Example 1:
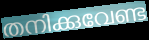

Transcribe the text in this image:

തനിക്കുവേണ്ട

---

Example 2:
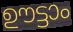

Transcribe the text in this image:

ഊട്ടാം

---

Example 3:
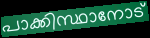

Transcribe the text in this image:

പാക്കിസ്ഥാനോട്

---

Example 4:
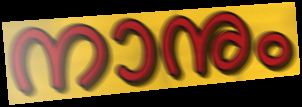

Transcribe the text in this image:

നാനും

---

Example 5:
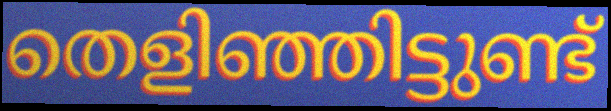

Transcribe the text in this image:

തെളിഞ്ഞിട്ടുണ്ട്